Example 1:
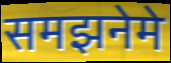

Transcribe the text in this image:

समझनेमे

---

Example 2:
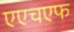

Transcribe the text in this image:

एएचएफ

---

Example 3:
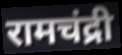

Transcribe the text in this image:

रामचंद्री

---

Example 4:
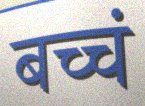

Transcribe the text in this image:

बच्चं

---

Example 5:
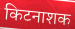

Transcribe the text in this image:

किटनाशक